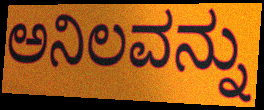
ಅನಿಲವನ್ನು